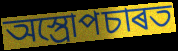
অস্ত্ৰোপচাৰত